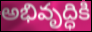
అభివృద్ధికి